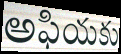
అఫియకు